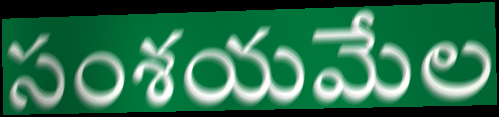
సంశయమేల